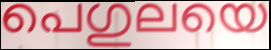
പെഗുലയെ